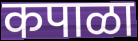
कपाळा